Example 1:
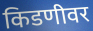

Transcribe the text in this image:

किडणीवर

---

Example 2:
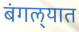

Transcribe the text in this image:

बंगल्यात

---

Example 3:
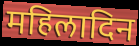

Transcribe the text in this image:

महिलादिन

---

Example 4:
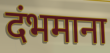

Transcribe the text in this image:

दंभमाना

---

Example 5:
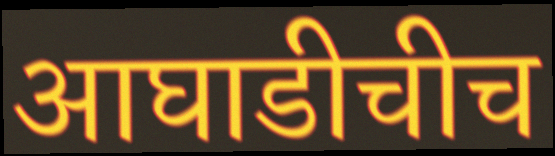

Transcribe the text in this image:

आघाडीचीच